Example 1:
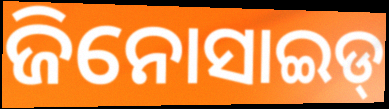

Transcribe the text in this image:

ଜିନୋସାଇଡ୍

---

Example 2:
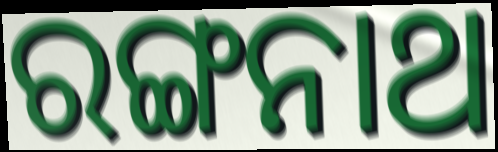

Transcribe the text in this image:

ରଙ୍ଗନାଥ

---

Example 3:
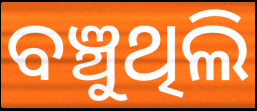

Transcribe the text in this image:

ବଞ୍ଚୁଥିଲି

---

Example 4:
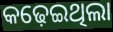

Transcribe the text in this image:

କଢ଼େଇଥିଲା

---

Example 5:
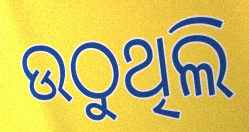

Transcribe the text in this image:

ଉଠୁଥିଲି